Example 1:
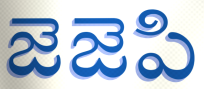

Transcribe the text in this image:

జెజెపి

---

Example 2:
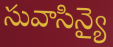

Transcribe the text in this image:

సువాసిన్యై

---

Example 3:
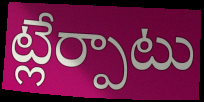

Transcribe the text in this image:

ట్లేర్పాటు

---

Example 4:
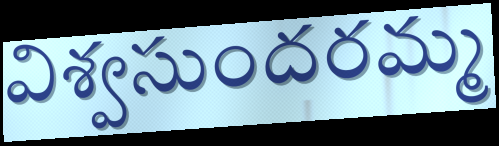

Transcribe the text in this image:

విశ్వసుందరమ్మ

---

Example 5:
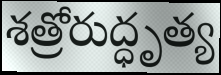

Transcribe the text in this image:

శత్రోరుద్ధృత్య